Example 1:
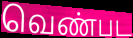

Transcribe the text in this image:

வெண்பட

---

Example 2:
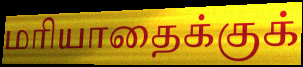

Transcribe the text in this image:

மரியாதைக்குக்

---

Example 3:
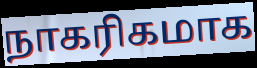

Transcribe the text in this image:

நாகரிகமாக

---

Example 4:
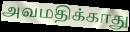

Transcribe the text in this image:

அவமதிக்காது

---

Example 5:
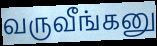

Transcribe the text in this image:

வருவீங்கனு